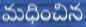
మధించిన